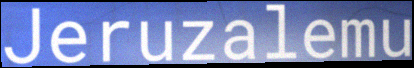
Jeruzalemu